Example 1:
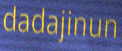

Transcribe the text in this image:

dadajinun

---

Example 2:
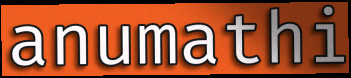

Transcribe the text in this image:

anumathi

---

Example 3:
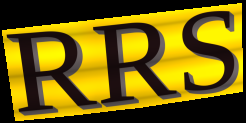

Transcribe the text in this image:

RRS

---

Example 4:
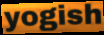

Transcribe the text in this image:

yogish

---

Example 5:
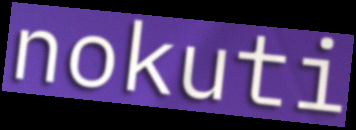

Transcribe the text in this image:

nokuti